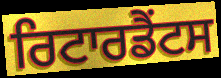
ਰਿਟਾਰਡੈਂਟਸ